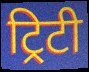
ट्रिटी